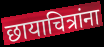
छायाचित्रांना